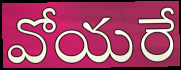
వోయరే